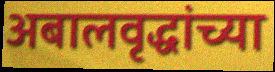
अबालवृद्धांच्या